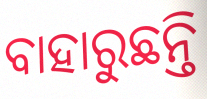
ବାହାରୁଛନ୍ତି